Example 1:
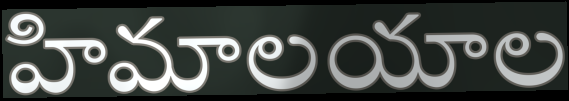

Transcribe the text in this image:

హిమాలయాల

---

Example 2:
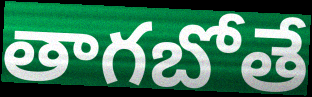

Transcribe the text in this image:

తాగబోతే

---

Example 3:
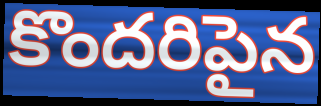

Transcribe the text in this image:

కొందరిపైన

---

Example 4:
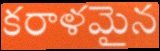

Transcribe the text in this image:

కరాళమైన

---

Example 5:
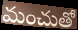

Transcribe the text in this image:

మంచుతో